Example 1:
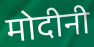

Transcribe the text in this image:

मोदीनी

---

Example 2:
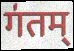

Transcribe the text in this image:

ग॑तम्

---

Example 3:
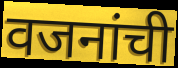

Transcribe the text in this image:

वजनांची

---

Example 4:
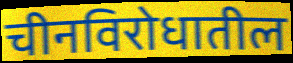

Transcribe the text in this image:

चीनविरोधातील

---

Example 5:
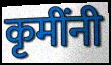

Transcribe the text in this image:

कृमींनी